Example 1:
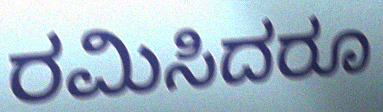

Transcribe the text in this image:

ರಮಿಸಿದರೂ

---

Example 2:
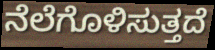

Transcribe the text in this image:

ನೆಲೆಗೊಳಿಸುತ್ತದೆ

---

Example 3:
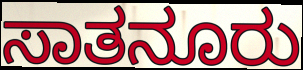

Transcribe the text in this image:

ಸಾತನೂರು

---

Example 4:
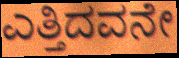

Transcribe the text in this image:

ಎತ್ತಿದವನೇ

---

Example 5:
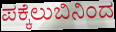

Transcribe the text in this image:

ಪಕ್ಕೆಲುಬಿನಿಂದ